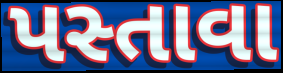
પસ્તાવા